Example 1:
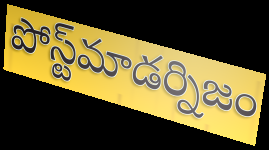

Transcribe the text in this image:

పోస్ట్‌మాడర్నిజం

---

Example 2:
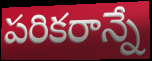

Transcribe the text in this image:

పరికరాన్నే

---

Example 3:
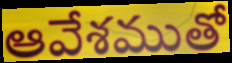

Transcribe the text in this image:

ఆవేశముతో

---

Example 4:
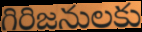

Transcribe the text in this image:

గిరిజనులకు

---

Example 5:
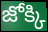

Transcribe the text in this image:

జోక్కి